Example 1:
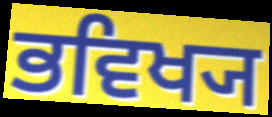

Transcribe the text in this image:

ਭਵਿਖ੍ਯ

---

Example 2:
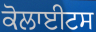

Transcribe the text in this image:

ਕੋਲਾਈਟਸ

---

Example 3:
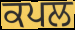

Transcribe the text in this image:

ਕਪਲ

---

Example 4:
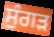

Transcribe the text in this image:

ਸੁੰਗੜ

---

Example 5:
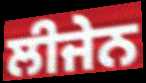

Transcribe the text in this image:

ਲੀਜੇਨ